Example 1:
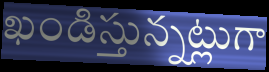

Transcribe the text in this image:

ఖండిస్తున్నట్లుగా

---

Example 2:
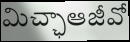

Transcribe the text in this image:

మిచ్ఛాఆజీవో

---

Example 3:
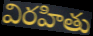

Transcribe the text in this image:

విరహితు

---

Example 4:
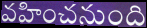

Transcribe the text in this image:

వహించనుంది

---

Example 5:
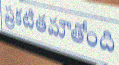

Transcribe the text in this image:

ప్రకటితమౌతోంది